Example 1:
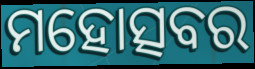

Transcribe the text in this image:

ମହୋତ୍ସବର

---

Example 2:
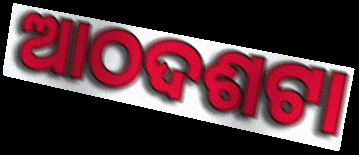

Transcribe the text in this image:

ଆଠଦଶଟା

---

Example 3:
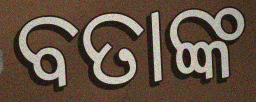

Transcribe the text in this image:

ବତାଙ୍କ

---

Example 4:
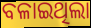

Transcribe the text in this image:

ବଳାଇଥିଲା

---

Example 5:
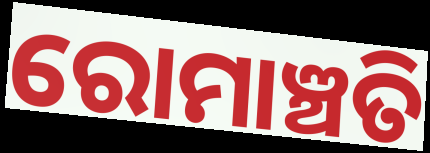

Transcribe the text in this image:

ରୋମାଞ୍ଚତି